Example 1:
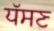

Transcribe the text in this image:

ਧੱਸਣ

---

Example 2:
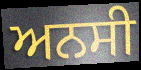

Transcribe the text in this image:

ਅਨਸੀ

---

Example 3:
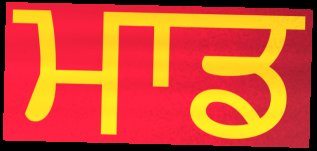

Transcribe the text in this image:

ਮਾਡ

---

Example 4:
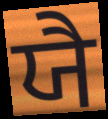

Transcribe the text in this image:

ਯੈ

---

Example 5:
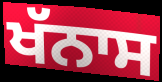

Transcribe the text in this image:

ਖੱਨਾਸ